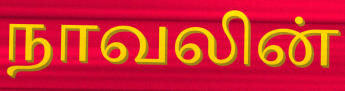
நாவலின்